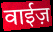
वाईज़